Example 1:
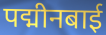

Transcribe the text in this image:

पद्मीनबाई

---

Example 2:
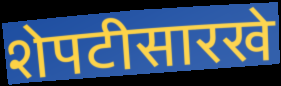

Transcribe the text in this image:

शेपटीसारखे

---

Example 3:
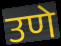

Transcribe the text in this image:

उणे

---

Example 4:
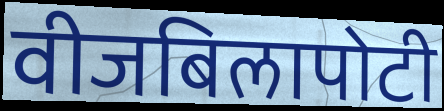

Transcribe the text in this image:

वीजबिलापोटी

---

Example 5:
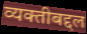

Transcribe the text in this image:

व्यक्तीबद्दल